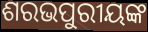
ଶରଭପୁରୀୟଙ୍କ